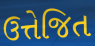
ઉત્તેજિત